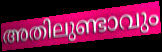
അതിലുണ്ടാവും